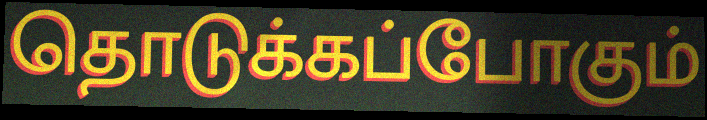
தொடுக்கப்போகும்